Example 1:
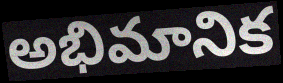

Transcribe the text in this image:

అభిమానిక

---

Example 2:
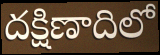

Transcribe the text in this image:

దక్షిణాదిలో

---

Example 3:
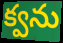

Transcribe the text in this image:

క్వను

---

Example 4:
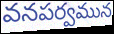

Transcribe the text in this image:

వనపర్వమున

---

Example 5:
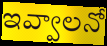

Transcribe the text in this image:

ఇవ్వాలనో